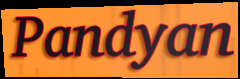
Pandyan